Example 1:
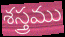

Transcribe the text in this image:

శస్త్రము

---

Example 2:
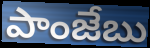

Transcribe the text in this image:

పాంజేబు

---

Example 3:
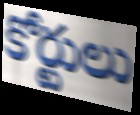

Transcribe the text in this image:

కోర్టులు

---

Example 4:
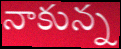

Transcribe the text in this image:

నాకున్న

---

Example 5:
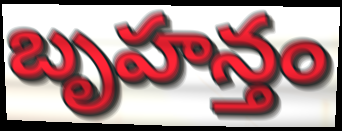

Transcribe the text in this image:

బృహన్తం